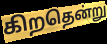
கிறதென்று